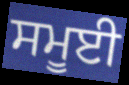
ਸਮੂਈ